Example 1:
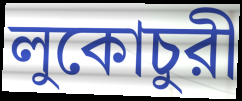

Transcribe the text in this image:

লুকোচুরী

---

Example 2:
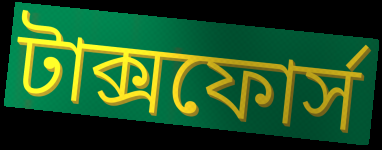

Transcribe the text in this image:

টাক্সফোর্স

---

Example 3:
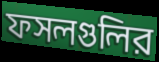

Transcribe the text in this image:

ফসলগুলির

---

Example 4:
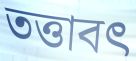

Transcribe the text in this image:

তত্তাবৎ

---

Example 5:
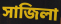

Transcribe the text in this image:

সাজিলা